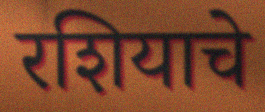
रशियाचे